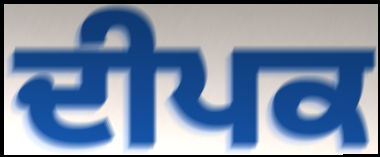
ਦੀਪਕ